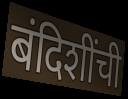
बंदिशींची